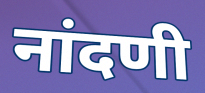
नांदणी